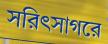
সরিৎসাগরে